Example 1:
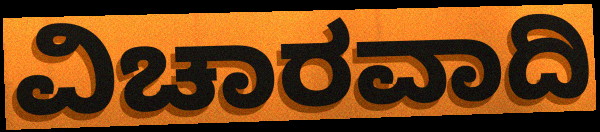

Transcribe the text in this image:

ವಿಚಾರವಾದಿ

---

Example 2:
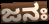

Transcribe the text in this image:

ಜನಃ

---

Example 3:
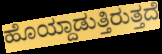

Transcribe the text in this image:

ಹೊಯ್ದಾಡುತ್ತಿರುತ್ತದೆ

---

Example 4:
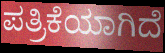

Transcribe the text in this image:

ಪತ್ರಿಕೆಯಾಗಿದೆ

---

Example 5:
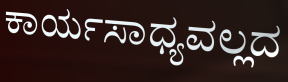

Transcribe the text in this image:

ಕಾರ್ಯಸಾಧ್ಯವಲ್ಲದ